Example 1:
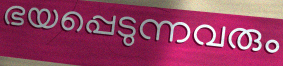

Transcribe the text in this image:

ഭയപ്പെടുന്നവരും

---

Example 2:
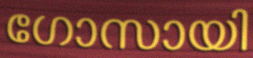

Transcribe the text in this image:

ഗോസായി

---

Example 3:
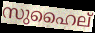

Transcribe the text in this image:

സുഹൈല്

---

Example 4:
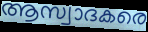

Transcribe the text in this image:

ആസ്വാദകരെ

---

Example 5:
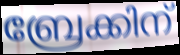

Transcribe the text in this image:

ബ്രേക്കിന്